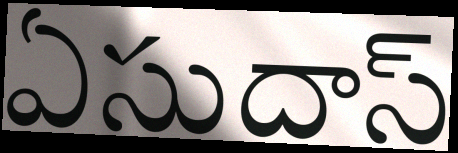
ఏసుదాస్